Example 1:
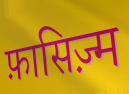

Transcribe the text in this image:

फ़ासिज़्म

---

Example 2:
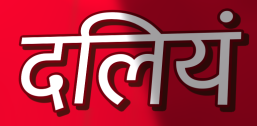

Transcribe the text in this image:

दलियं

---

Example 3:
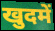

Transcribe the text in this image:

खुदमें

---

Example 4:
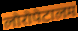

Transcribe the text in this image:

लोरोपेटालम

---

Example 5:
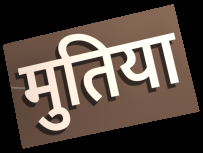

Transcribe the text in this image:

मुतिया